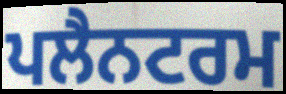
ਪਲੈਨਟਰਮ